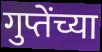
गुप्तेंच्या